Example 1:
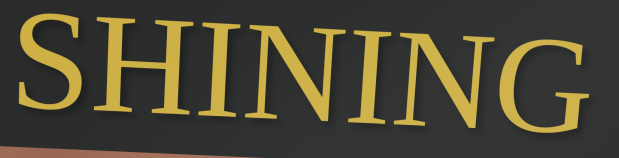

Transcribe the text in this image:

SHINING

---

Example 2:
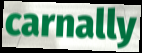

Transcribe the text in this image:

carnally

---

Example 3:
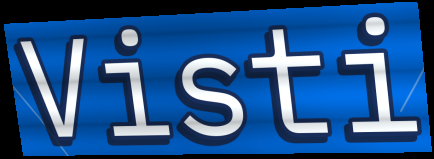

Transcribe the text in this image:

Visti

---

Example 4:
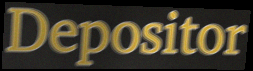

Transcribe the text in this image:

Depositor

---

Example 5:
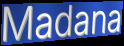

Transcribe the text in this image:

Madana